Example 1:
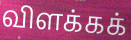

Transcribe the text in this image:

விளக்கக்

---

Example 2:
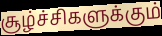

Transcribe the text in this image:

சூழ்ச்சிகளுக்கும்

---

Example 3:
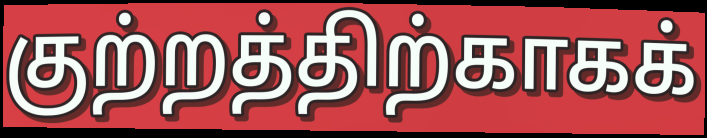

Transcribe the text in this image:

குற்றத்திற்காகக்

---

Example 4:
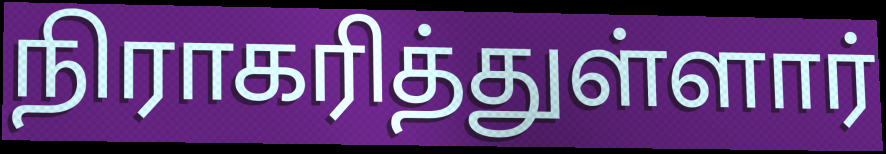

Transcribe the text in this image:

நிராகரித்துள்ளார்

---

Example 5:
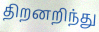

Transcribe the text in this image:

திறனறிந்து